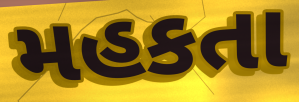
મહકતા